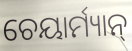
ଚେୟାର୍ମ୍ୟାନ୍